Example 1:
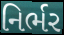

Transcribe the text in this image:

નિર્ભર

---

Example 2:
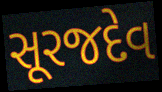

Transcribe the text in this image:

સૂરજદેવ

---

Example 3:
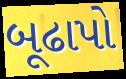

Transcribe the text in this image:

બૂઢાપો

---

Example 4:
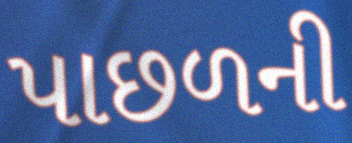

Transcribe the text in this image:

પાછળની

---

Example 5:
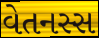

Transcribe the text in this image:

વેતનસ્સ